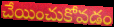
చేయించుకోవడం